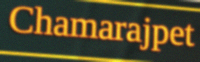
Chamarajpet